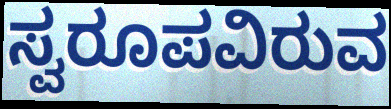
ಸ್ವರೂಪವಿರುವ